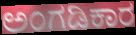
ಅಂಗಡಿಕಾರ